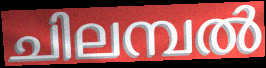
ചിലമ്പൽ